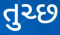
તુચ્છ